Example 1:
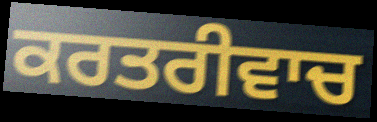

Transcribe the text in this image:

ਕਰਤਰੀਵਾਚ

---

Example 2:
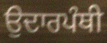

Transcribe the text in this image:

ਉਦਾਰਪੰਥੀ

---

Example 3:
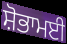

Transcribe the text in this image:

ਸ਼ੋਭਾਮਈ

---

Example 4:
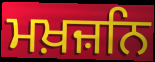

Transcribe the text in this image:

ਮਖ਼ਜ਼ਨਿ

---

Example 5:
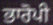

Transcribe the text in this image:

ਭਾਰੋਪੀ